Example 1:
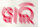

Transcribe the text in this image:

ୱାଲି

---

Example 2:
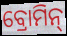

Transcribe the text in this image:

ବ୍ରୋମିନ୍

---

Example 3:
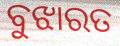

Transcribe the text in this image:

ବୁଝାରତ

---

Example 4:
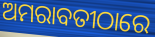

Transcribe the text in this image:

ଅମରାବତୀଠାରେ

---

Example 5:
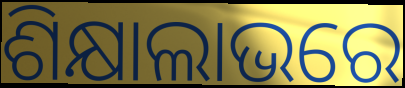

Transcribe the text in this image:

ଶିକ୍ଷାଲାଭରେ